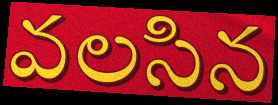
వలసిన